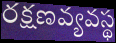
రక్షణవ్యవస్థ